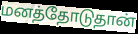
மனத்தோடுதான்